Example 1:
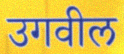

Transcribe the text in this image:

उगवील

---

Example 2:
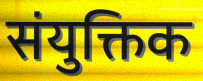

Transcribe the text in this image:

संयुक्तिक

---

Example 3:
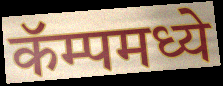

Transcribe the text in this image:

कॅम्पमध्ये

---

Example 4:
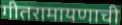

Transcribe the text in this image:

गीतरामायणाची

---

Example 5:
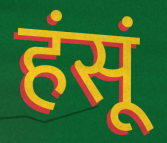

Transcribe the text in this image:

हंसूं